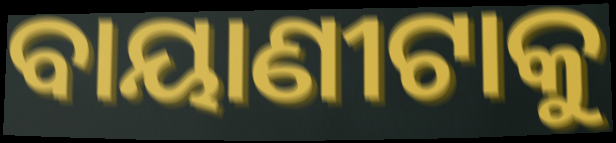
ବାୟାଣୀଟାକୁ